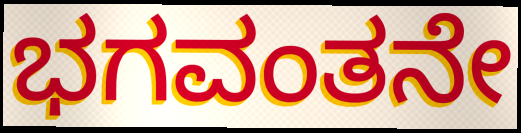
ಭಗವಂತನೇ